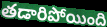
తడారిపోయింది